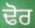
ਢੋਰ